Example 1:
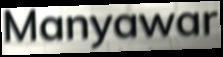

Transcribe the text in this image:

Manyawar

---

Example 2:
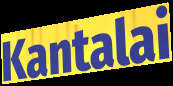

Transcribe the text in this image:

Kantalai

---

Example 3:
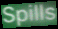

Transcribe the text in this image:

Spills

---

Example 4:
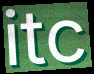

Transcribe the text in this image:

itc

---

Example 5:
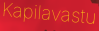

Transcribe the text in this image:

Kapilavastu